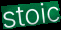
stoic